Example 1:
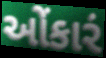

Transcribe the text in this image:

ઓંકારં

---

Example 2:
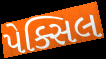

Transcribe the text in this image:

પેક્સિલ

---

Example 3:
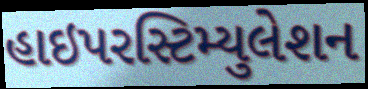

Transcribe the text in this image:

હાઇપરસ્ટિમ્યુલેશન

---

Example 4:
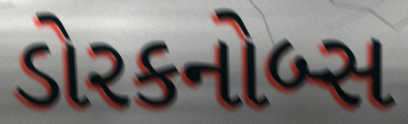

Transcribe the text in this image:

ડોરકનોબ્સ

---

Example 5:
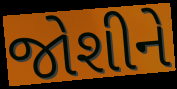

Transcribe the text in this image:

જોશીને